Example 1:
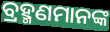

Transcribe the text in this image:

ବ୍ରହ୍ମଣମାନଙ୍କ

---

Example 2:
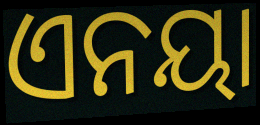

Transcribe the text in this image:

ଏନୟା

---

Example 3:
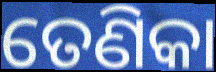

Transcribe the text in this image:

ତେଣିକା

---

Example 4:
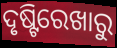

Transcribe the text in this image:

ଦୃଷ୍ଟିରେଖାରୁ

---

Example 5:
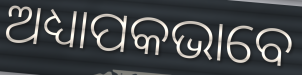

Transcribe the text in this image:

ଅଧ୍ୟାପକଭାବେ